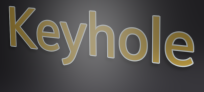
Keyhole